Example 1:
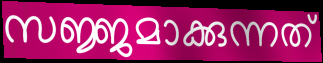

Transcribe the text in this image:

സജ്ജമാക്കുന്നത്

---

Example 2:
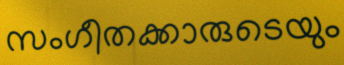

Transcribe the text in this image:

സംഗീതക്കാരുടെയും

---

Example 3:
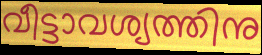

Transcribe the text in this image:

വീട്ടാവശ്യത്തിനു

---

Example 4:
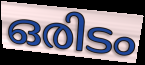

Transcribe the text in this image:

ഒരിടം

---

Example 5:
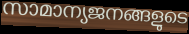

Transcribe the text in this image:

സാമാന്യജനങ്ങളുടെ